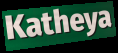
Katheya